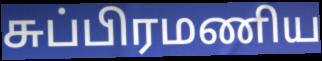
சுப்பிரமணிய